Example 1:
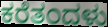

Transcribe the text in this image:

ಕರೆತಂದಳು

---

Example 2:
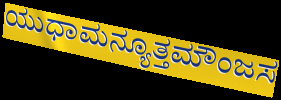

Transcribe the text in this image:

ಯುಧಾಮನ್ಯೂತ್ತಮೌಂಜಸ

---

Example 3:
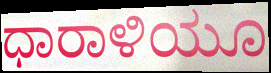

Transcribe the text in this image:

ಧಾರಾಳಿಯೂ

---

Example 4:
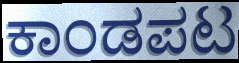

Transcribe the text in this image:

ಕಾಂಡಪಟ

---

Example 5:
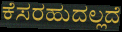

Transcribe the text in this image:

ಕೆಸರಹುದಲ್ಲದೆ